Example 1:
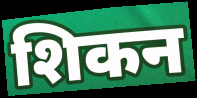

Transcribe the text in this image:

शिकन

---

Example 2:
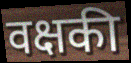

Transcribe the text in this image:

वक्षकी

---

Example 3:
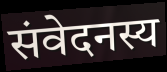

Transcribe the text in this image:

संवेदनस्य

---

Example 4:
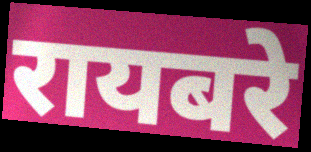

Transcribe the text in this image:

रायबरे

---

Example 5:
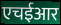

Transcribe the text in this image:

एचईआर